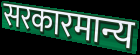
सरकारमान्य